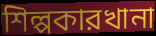
শিল্পকারখানা